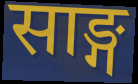
साङ्ग